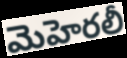
మెహెరలీ